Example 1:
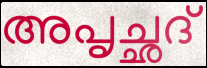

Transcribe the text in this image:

അപൃച്ഛദ്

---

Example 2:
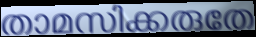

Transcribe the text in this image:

താമസിക്കരുതേ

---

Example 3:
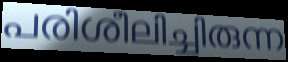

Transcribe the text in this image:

പരിശീലിച്ചിരുന്ന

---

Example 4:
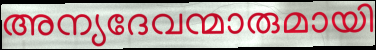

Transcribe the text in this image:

അന്യദേവന്മാരുമായി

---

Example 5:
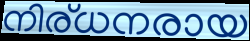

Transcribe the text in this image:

നിര്ധനരായ